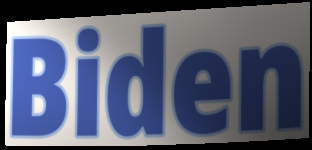
Biden